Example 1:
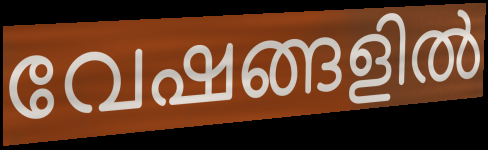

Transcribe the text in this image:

വേഷങ്ങളിൽ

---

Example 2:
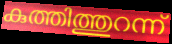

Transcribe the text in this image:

കുത്തിത്തുറന്ന്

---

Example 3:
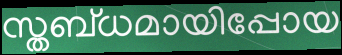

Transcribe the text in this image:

സ്തബ്ധമായിപ്പോയ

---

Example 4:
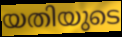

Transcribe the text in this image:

യതിയുടെ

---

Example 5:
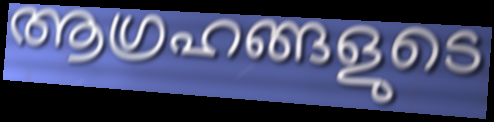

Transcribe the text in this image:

ആഗ്രഹങ്ങളുടെ